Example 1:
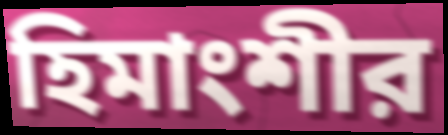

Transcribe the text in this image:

হিমাংশীর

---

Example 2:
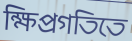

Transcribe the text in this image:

ক্ষিপ্রগতিতে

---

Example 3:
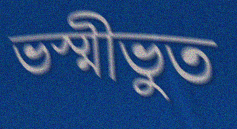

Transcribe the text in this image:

ভস্মীভুত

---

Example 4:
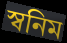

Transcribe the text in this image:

স্বনিম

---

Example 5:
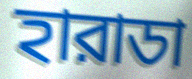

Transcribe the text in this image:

হারাডা